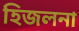
হিজলনা